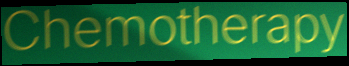
Chemotherapy